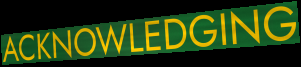
ACKNOWLEDGING